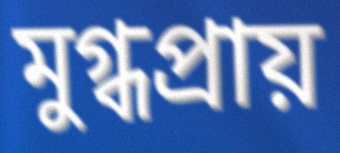
মুগ্ধপ্রায়